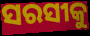
ସରସୀକୁ